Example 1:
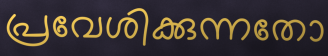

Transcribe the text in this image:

പ്രവേശിക്കുന്നതോ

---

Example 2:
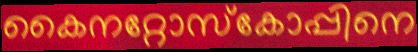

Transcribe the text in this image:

കൈനറ്റോസ്കോപ്പിനെ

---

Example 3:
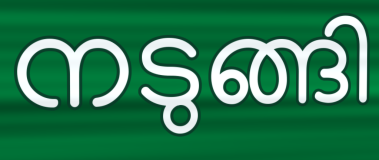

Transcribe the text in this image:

നടുങ്ങി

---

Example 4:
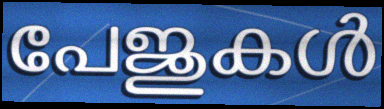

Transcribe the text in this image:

പേജുകൾ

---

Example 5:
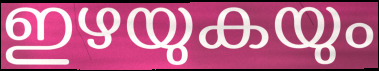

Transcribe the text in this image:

ഇഴയുകയും